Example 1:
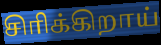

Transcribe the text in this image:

சிரிக்கிறாய்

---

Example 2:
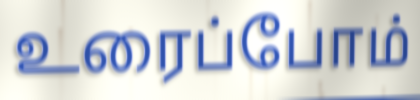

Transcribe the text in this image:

உரைப்போம்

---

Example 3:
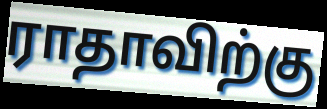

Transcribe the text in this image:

ராதாவிற்கு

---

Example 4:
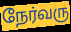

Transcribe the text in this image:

நேர்வரு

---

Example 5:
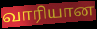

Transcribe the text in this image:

வாரியான